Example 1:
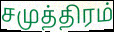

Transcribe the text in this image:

சமுத்திரம்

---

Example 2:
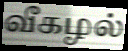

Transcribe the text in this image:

வீகழல்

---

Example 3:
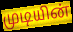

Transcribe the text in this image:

முடியின்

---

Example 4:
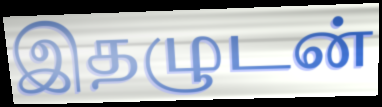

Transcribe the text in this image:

இதழுடன்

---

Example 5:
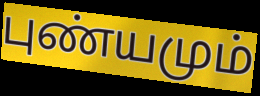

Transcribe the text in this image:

புண்யமும்